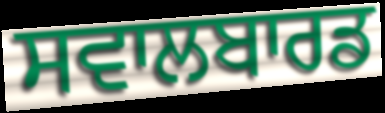
ਸਵਾਲਬਾਰਡ